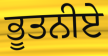
ਭੂਤਨੀਏ